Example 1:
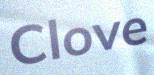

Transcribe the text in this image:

Clove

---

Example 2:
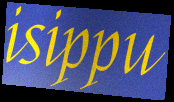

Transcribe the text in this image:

isippu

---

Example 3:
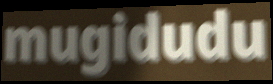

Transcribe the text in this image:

mugidudu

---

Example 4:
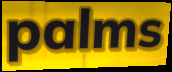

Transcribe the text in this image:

palms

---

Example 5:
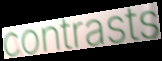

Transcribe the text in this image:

contrasts